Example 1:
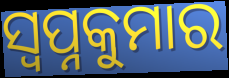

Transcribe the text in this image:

ସ୍ଵପ୍ନକୁମାର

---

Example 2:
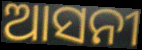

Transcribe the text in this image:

ଆସନୀ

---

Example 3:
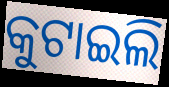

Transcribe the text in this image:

କୁଟାଇଲି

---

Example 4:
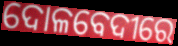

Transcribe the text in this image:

ଦୋଳବେଦୀରେ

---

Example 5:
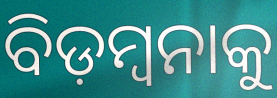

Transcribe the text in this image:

ବିଡ଼ମ୍ୱନାକୁ